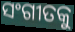
ସଂଗୀତକୁ